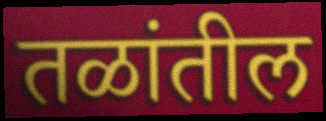
तळांतील